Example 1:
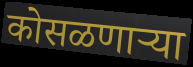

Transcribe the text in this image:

कोसळणार्‍या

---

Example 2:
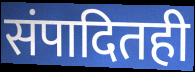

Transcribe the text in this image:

संपादितही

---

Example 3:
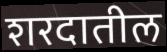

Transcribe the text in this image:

शरदातील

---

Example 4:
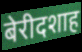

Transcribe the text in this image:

बेरीदशाह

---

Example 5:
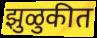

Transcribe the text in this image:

झुळुकीत